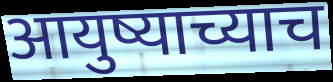
आयुष्याच्याच